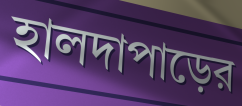
হালদাপাড়ের